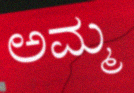
ಅಮ್ಮ